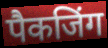
पैकजिंग